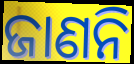
ଜାଣନି